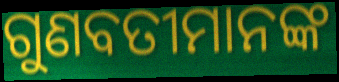
ଗୁଣବତୀମାନଙ୍କ